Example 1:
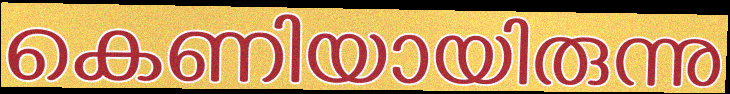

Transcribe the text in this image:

കെണിയായിരുന്നു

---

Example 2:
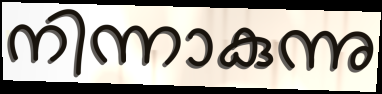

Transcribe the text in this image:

നിന്നാകുന്നു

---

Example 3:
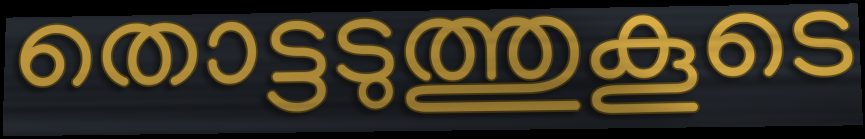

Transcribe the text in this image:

തൊട്ടടുത്തുകൂടെ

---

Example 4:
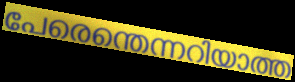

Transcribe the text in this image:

പേരെന്തെന്നറിയാത്ത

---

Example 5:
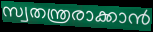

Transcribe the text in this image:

സ്വതന്ത്രരാക്കാൻ